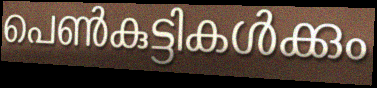
പെൺകുട്ടികൾക്കും